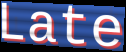
Late